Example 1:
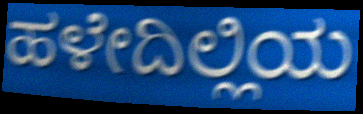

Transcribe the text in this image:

ಹಳೇದಿಲ್ಲಿಯ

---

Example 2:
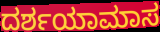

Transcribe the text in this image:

ದರ್ಶಯಾಮಾಸ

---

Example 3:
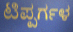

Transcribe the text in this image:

ಟಿಪ್ಪರ್ಗಳ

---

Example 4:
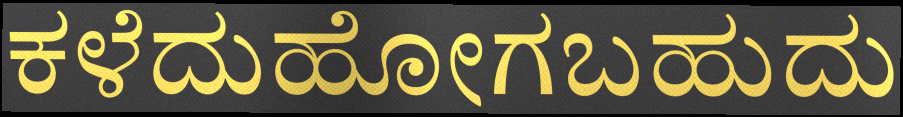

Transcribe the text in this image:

ಕಳೆದುಹೋಗಬಹುದು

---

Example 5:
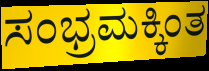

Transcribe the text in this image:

ಸಂಭ್ರಮಕ್ಕಿಂತ